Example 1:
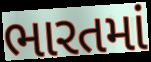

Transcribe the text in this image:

ભારતમાં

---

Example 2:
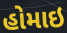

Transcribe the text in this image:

હોમાઇ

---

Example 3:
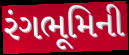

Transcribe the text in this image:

રંગભૂમિની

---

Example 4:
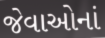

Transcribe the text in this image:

જેવાઓનાં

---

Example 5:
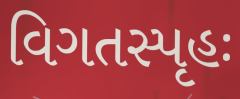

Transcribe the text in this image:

વિગતસ્પૃહઃ